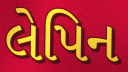
લેપિન